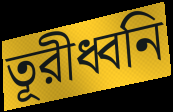
তূরীধ্বনি